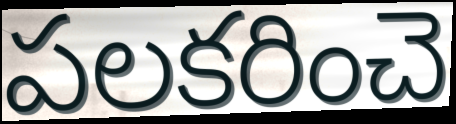
పలకరించె